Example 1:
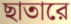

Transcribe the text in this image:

ছাতারে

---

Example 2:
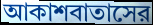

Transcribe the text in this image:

আকাশবাতাসের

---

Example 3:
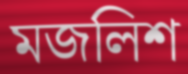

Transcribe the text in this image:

মজলিশ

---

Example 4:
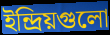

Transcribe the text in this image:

ইন্দ্রিয়গুলো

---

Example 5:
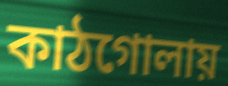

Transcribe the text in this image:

কাঠগোলায়